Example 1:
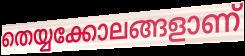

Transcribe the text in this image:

തെയ്യക്കോലങ്ങളാണ്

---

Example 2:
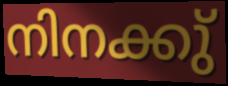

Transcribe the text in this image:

നിനക്കു്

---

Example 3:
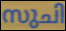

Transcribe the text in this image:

സുചി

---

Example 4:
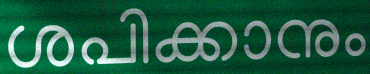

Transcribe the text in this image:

ശപിക്കാനും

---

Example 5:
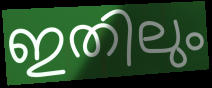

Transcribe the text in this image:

ഇതിലും